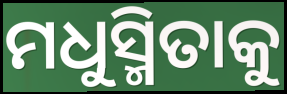
ମଧୁସ୍ମିତାକୁ